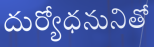
దుర్యోధనునితో